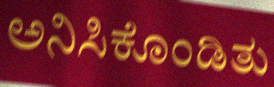
ಅನಿಸಿಕೊಂಡಿತು